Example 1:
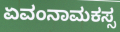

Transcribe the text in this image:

ಏವಂನಾಮಕಸ್ಸ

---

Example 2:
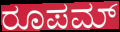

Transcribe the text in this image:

ರೂಪಮ್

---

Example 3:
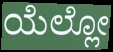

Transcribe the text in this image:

ಯೆಲ್ಲೋ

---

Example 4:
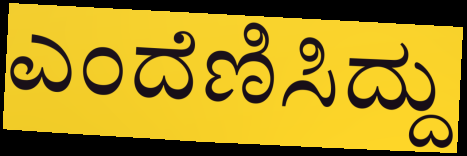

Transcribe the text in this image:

ಎಂದೆಣಿಸಿದ್ದು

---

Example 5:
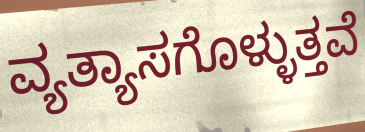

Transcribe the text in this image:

ವ್ಯತ್ಯಾಸಗೊಳ್ಳುತ್ತವೆ